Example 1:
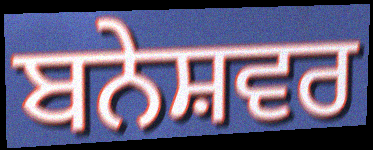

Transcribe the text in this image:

ਬਨੇਸ਼ਵਰ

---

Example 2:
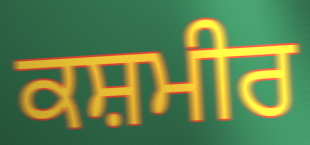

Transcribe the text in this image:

ਕਸ਼ਮੀਰ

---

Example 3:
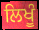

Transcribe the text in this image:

ਲਿਖੂੰ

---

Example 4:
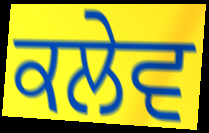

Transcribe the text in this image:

ਕਲੇਵ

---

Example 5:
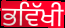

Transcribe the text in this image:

ਭਵਿੱਖੀ